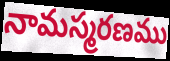
నామస్మరణము